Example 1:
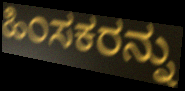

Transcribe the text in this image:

ಹಿಂಸಕರನ್ನು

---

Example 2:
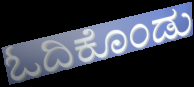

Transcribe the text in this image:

ಓದಿಕೊಂಡು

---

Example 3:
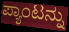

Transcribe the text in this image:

ಪ್ಯಾಂಟನ್ನು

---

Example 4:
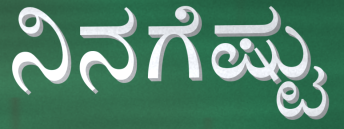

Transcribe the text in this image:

ನಿನಗೆಷ್ಟು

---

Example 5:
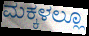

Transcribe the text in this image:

ಮಕ್ಕಳಲ್ಲೂ